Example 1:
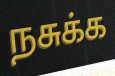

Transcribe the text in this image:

நசுக்க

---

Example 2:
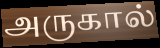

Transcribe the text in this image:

அருகால்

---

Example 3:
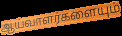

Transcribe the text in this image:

ஆய்வாளர்களையும்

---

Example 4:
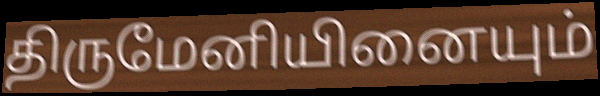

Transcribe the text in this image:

திருமேனியினையும்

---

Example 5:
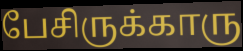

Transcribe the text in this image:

பேசிருக்காரு